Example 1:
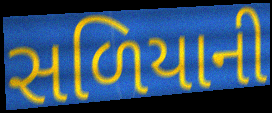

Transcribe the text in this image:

સળિયાની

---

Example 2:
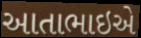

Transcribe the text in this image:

આતાભાઇએ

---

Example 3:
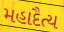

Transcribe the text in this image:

મહાદૈત્ય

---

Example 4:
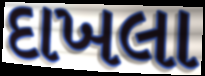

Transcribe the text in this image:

દાખલા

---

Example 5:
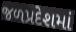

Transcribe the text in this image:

જળપ્રદેશમાં